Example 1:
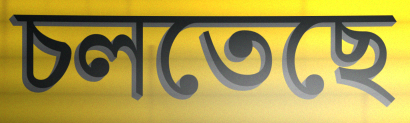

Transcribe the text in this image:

চলতেছে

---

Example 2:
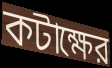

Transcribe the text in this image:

কটাক্ষের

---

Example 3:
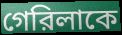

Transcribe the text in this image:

গেরিলাকে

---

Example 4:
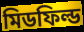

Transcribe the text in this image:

মিডফিল্ড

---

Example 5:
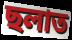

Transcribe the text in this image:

ছলাত